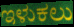
ಇಳುಕಲು